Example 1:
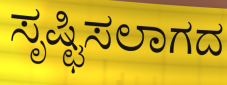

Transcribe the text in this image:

ಸೃಷ್ಟಿಸಲಾಗದ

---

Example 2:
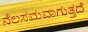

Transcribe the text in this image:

ನೆಲಸಮವಾಗುತ್ತದೆ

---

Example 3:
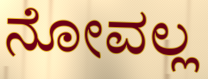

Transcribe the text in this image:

ನೋವಲ್ಲ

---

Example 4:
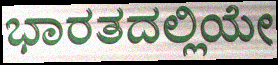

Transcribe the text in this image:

ಭಾರತದಲ್ಲಿಯೇ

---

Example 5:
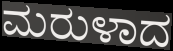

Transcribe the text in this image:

ಮರುಳಾದ